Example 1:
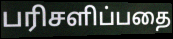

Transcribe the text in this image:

பரிசளிப்பதை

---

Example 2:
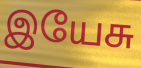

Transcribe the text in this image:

இயேசு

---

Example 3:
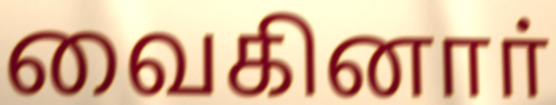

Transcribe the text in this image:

வைகினார்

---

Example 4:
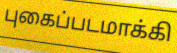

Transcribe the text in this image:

புகைப்படமாக்கி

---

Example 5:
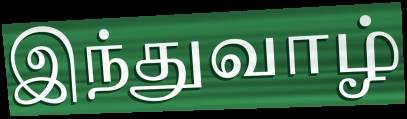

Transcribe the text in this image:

இந்துவாழ்